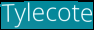
Tylecote